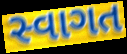
સ્વાગત